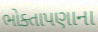
ભોક્તાપણાના